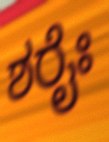
ಶರೈಃ